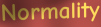
Normality